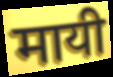
मायी